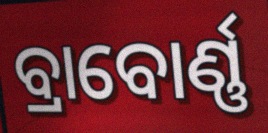
ବ୍ରାବୋର୍ଣ୍ଣ